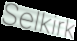
Selkirk